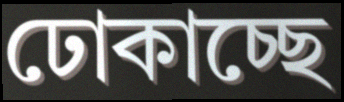
ঢোকাচ্ছে